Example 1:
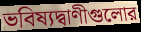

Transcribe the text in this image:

ভবিষ্যদ্বাণীগুলোর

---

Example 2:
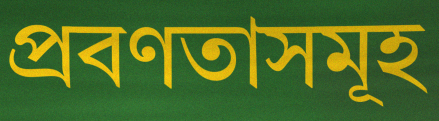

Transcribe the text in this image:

প্রবণতাসমূহ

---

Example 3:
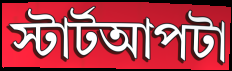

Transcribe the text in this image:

স্টার্টআপটা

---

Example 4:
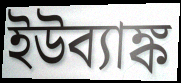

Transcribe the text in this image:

ইউব্যাঙ্ক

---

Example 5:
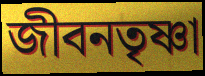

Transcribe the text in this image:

জীবনতৃষ্ণা